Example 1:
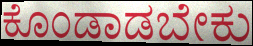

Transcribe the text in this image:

ಕೊಂಡಾಡಬೇಕು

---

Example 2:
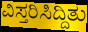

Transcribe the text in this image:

ವಿಸ್ತರಿಸಿದ್ದಿತು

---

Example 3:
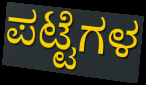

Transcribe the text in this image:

ಪಟ್ಟೆಗಳ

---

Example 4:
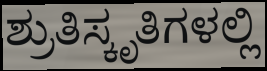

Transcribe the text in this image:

ಶ್ರುತಿಸ್ಕೃತಿಗಳಲ್ಲಿ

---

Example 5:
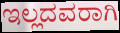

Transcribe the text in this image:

ಇಲ್ಲದವರಾಗಿ